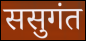
ससुगंत